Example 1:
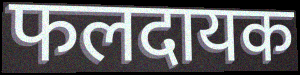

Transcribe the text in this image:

फलदायक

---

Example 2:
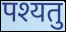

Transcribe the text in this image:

पश्यतु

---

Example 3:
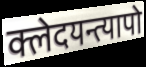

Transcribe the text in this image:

क्लेदयन्त्यापो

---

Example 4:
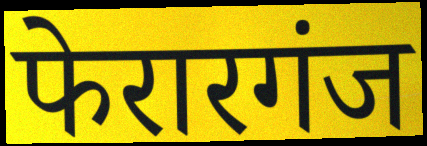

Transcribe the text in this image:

फेरारगंज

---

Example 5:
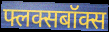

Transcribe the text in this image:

फ्लक्सबॉक्स